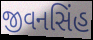
જીવનસિંહ